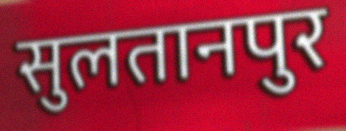
सुलतानपुर